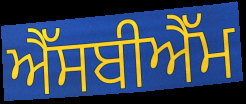
ਐੱਸਬੀਐੱਮ